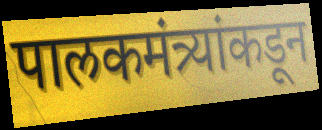
पालकमंत्र्यांकडून